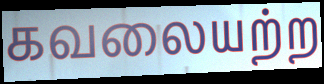
கவலையற்ற